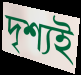
দৃশ্যই